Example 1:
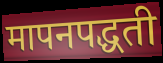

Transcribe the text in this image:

मापनपद्धती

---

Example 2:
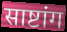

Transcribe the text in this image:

साष्टांग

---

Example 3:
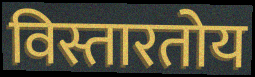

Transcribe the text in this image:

विस्तारतोय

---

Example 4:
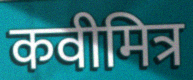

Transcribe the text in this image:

कवीमित्र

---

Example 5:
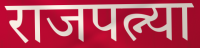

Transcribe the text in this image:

राजपत्न्या